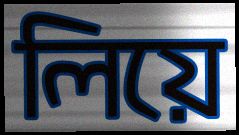
লিয়ে